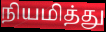
நியமித்து